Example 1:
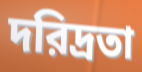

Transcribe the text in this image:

দরিদ্রতা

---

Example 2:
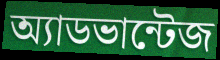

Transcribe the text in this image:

অ্যাডভান্টেজ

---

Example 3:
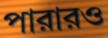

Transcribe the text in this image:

পারারও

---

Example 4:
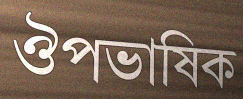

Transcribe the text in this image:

ঔপভাষিক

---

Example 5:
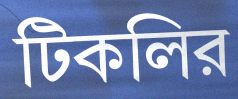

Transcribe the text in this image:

টিকলির